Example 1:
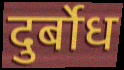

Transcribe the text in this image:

दुर्बोध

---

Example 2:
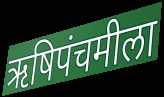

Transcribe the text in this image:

ऋषिपंचमीला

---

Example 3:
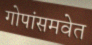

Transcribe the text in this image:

गोपांसमवेत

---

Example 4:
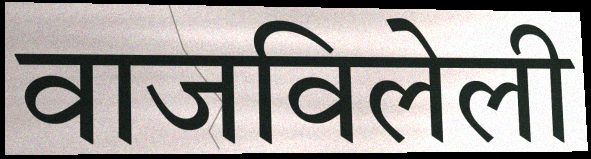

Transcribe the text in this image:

वाजविलेली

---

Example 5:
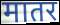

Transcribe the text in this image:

मातर